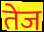
तेज